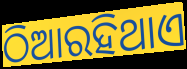
ଠିଆରହିଥାଏ